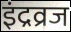
इंद्रव्रज